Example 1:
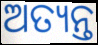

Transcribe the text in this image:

ଅତ୍ୟନ୍ତ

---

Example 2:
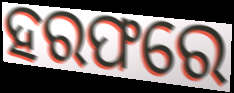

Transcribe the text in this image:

ହରଫରେ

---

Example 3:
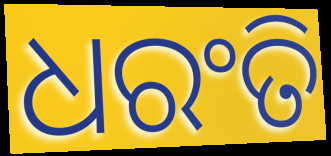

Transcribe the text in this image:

ଧରଂତି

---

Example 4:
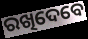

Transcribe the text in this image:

ରଖିଦେବେ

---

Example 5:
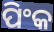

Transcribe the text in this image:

ପିଂକ